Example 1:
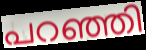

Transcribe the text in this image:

പറഞ്ഞി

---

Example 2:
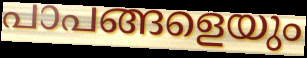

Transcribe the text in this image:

പാപങ്ങളെയും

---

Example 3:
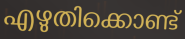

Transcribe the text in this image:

എഴുതിക്കൊണ്ട്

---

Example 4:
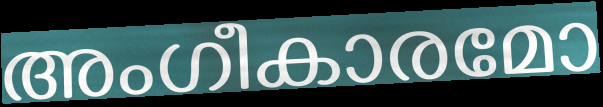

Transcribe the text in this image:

അംഗീകാരമോ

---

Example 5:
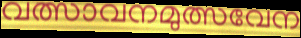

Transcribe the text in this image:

വത്സാവനമുത്സവേന